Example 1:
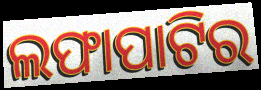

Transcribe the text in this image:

ଲଫାପାଟିର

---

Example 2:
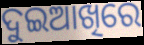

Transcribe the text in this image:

ଦୁଇଆଖିରେ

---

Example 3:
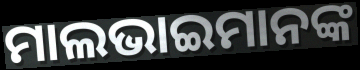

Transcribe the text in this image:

ମାଲଭାଇମାନଙ୍କ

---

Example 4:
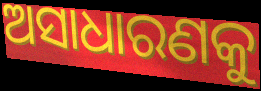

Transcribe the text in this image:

ଅସାଧାରଣକୁ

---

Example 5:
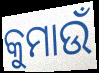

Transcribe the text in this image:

କୁମାଉଁ